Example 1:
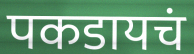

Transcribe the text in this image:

पकडायचं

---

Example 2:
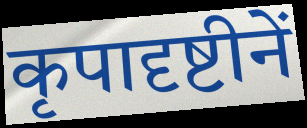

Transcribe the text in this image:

कृपादृष्टीनें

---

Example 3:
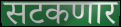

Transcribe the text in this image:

सटकणार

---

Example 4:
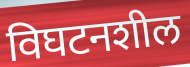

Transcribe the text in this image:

विघटनशील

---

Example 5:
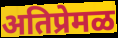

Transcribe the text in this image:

अतिप्रेमळ